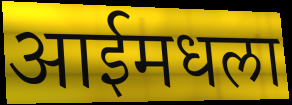
आईमधला